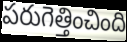
పరుగెత్తించింది